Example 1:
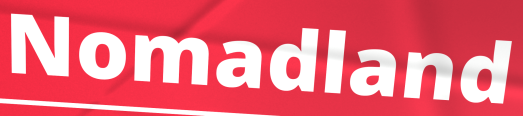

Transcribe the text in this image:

Nomadland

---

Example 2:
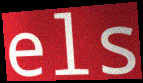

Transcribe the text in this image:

els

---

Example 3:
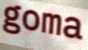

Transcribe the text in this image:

goma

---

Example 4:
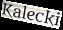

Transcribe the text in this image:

Kalecki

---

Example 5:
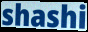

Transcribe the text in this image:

shashi